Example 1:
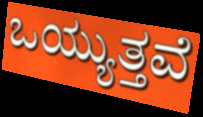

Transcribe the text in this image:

ಒಯ್ಯುತ್ತವೆ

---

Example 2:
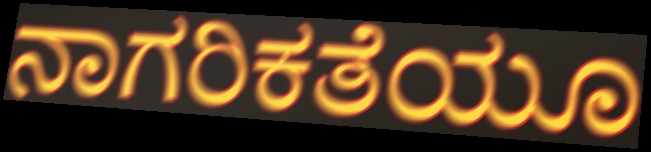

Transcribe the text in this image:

ನಾಗರಿಕತೆಯೂ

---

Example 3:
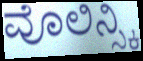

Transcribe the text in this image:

ವೊಲಿನ್ಸ್ಕಿ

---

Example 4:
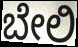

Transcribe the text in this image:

ಬೇಲಿ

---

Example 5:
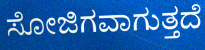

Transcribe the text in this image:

ಸೋಜಿಗವಾಗುತ್ತದೆ